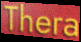
Thera